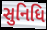
સુનિધિ